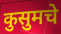
कुसुमचे